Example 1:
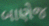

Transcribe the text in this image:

બાણેજ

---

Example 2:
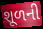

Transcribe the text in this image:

શૂળની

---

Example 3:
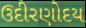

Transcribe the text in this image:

ઉદીરણોદય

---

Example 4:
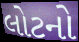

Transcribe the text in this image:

લોટનો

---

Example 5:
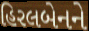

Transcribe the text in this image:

હિરલબેનને